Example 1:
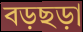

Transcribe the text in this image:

বড়ছড়া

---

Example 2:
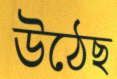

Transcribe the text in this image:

উঠেছ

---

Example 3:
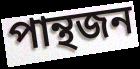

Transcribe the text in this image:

পান্থজন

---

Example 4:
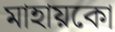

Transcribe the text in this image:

মাহায়কো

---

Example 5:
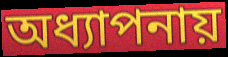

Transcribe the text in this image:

অধ্যাপনায়